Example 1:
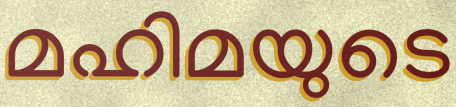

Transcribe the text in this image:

മഹിമയുടെ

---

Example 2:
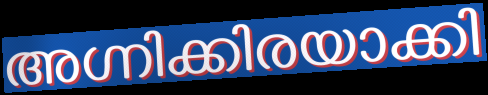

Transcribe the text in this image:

അഗ്നിക്കിരയാക്കി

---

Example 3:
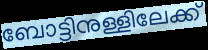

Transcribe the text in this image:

ബോട്ടിനുള്ളിലേക്ക്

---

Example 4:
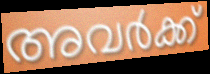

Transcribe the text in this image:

അവർക്ക്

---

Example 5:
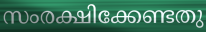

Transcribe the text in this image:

സംരക്ഷിക്കേണ്ടതു